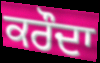
ਕਰੌਦਾ